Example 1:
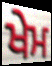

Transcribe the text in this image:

ਖੇਮ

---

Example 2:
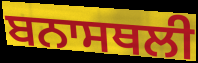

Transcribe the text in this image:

ਬਨਾਸਥਲੀ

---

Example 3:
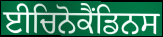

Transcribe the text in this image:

ਈਚਿਨੋਕੈਂਡਿਨਸ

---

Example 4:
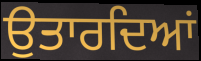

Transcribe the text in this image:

ਉਤਾਰਦਿਆਂ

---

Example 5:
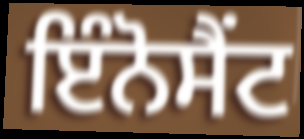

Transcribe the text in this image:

ਇੰਨੋਸੈਂਟ